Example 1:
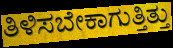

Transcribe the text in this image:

ತಿಳಿಸಬೇಕಾಗುತ್ತಿತ್ತು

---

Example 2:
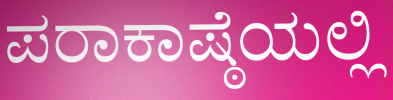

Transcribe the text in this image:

ಪರಾಕಾಷ್ಠೆಯಲ್ಲಿ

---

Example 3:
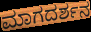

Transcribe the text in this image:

ಮಾಗದರ್ಶನ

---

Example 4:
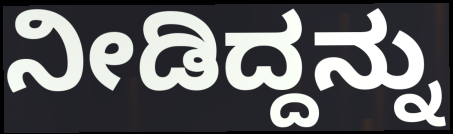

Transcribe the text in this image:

ನೀಡಿದ್ದನ್ನು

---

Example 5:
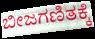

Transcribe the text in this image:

ಬೀಜಗಣಿತಕ್ಕೆ